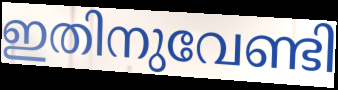
ഇതിനുവേണ്ടി